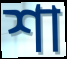
শা